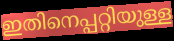
ഇതിനെപ്പറ്റിയുള്ള